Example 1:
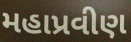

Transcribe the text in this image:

મહાપ્રવીણ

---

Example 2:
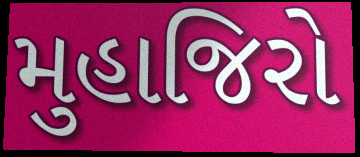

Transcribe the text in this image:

મુહાજિરો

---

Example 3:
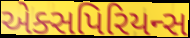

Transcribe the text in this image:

એક્સપિરિયન્સ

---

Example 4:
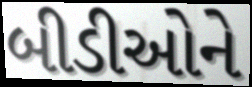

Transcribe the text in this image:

બીડીઓને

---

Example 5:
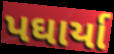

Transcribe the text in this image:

પઘાર્યા